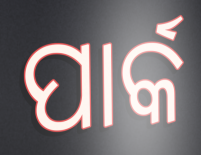
ପାର୍କ